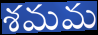
శమమ